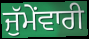
ਜੁੱਮੇਂਵਾਰੀ